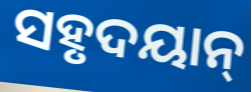
ସହୃଦୟାନ୍